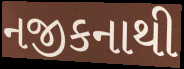
નજીકનાથી